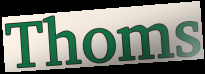
Thoms